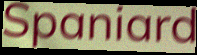
Spaniard